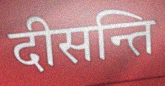
दीसन्ति